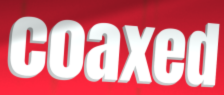
coaxed